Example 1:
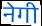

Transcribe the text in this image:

नेगी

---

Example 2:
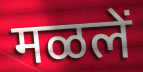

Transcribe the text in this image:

मळलें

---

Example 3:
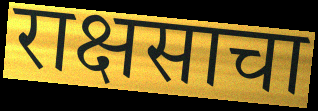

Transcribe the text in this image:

राक्षसाचा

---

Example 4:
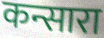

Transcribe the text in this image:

कन्सारा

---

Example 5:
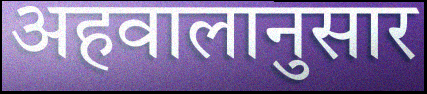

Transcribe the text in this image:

अहवालानुसार